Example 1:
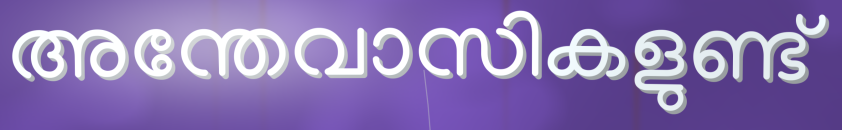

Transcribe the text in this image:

അന്തേവാസികളുണ്ട്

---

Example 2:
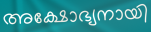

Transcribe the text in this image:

അക്ഷോഭ്യനായി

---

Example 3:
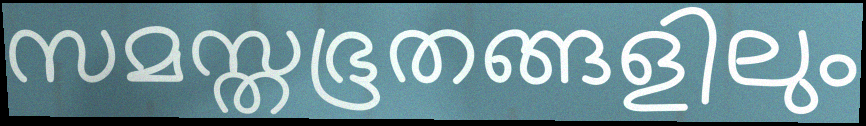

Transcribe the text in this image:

സമസ്തഭൂതങ്ങളിലും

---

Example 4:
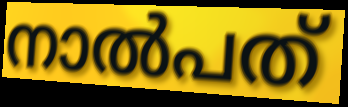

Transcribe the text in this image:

നാൽപത്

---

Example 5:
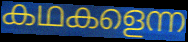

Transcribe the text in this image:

കഥകളെന്ന